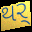
થર્